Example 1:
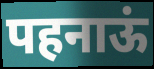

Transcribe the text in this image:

पहनाऊं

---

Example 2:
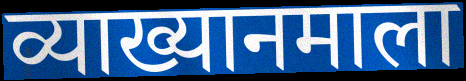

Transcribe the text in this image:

व्याख्यानमाला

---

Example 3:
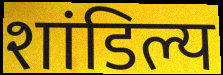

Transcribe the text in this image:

शांडिल्य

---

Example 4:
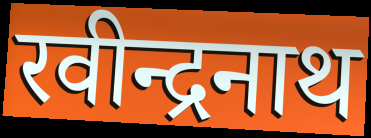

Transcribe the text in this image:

रवीन्द्रनाथ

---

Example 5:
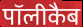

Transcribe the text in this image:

पॉलीकैब